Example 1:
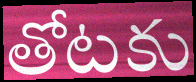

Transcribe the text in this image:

తోటకు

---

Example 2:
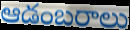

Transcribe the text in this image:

ఆడంబరాలు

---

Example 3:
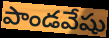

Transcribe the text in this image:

పాండవేషు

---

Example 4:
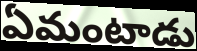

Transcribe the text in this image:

ఏమంటాడు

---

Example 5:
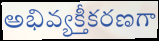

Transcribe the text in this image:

అభివ్యక్తీకరణగా